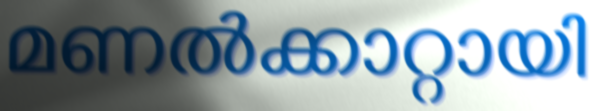
മണൽക്കാറ്റായി